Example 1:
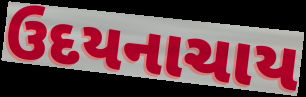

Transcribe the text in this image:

ઉદયનાચાય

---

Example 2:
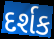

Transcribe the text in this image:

દર્શક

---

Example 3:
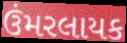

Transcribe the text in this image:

ઉંમરલાયક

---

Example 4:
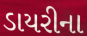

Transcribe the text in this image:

ડાયરીના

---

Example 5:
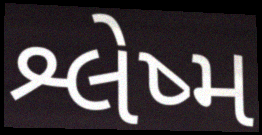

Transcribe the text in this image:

શ્લેષ્મ